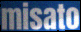
misato